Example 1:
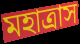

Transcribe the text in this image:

মহাত্রাস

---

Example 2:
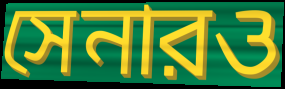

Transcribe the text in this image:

সেনারও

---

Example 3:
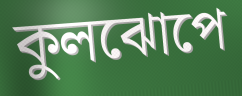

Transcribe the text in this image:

কুলঝোপে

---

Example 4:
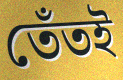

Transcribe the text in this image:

তেঁতই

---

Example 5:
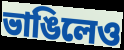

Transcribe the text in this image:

ভাঙিলেও